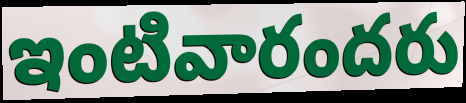
ఇంటివారందరు